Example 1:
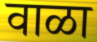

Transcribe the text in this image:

वाळा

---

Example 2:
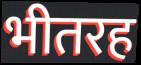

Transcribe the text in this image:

भीतरह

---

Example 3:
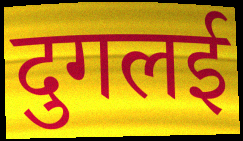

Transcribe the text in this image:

दुगलई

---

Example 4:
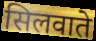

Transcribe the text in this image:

सिलवाते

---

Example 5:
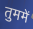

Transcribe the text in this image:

तुममें